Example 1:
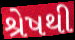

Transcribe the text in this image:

શ્રેષથી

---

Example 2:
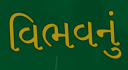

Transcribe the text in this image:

વિભવનું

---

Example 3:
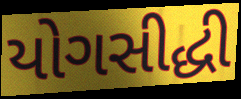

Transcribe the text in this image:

યોગસીદ્ધી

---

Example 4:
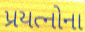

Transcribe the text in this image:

પ્રયત્નોના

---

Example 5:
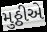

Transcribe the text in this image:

મુઠ્ઠીએ